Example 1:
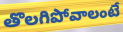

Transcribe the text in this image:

తొలగిపోవాలంటే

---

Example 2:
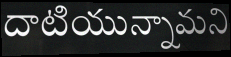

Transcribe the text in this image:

దాటియున్నామని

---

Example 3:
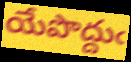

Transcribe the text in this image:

యేపొద్దుఁ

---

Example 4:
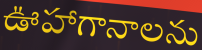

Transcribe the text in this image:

ఊహాగానాలను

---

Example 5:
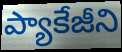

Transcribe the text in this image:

ప్యాకేజీని